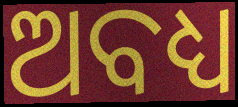
ଅବଧ୍ୟ